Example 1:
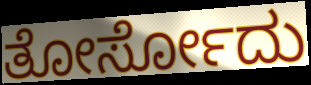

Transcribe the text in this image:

ತೋರ್ಸೋದು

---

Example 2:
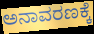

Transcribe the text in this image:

ಅನಾವರಣಕ್ಕೆ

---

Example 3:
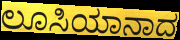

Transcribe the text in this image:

ಲೂಸಿಯಾನಾದ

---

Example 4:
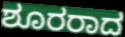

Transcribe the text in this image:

ಶೂರರಾದ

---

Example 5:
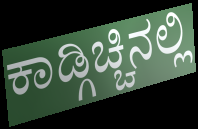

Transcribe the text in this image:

ಕಾಡ್ಗಿಚ್ಚಿನಲ್ಲಿ